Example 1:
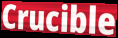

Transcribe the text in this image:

Crucible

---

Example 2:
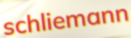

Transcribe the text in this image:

schliemann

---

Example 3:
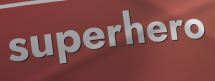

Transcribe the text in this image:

superhero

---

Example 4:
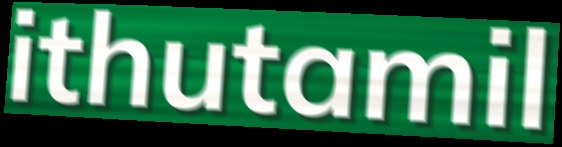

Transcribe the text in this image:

ithutamil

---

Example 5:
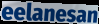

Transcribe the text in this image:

eelanesan